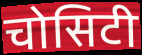
चोसिटी